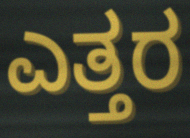
ಎತ್ತರ